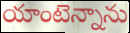
యాంటెన్నాను